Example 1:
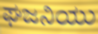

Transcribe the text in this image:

ಘಜನಿಯು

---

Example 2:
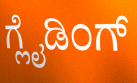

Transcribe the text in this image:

ಗ್ಲೈಡಿಂಗ್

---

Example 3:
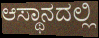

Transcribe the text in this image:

ಆಸ್ಥಾನದಲ್ಲಿ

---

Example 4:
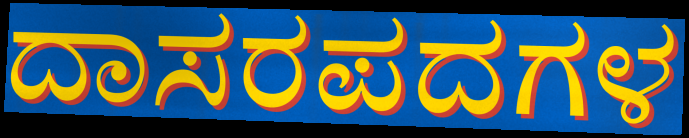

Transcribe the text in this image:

ದಾಸರಪದಗಳ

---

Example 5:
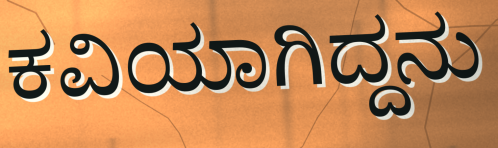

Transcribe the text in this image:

ಕವಿಯಾಗಿದ್ದನು